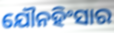
ଯୌନହିଂସାର